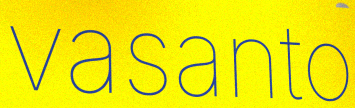
vasanto